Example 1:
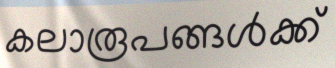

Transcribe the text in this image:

കലാരൂപങ്ങൾക്ക്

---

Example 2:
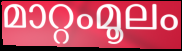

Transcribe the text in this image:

മാറ്റംമൂലം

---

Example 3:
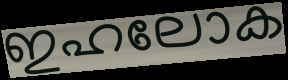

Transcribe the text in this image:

ഇഹലോക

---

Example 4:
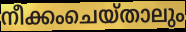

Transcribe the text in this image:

നീക്കംചെയ്താലും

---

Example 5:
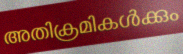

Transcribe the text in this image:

അതിക്രമികൾക്കും